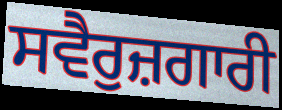
ਸਵੈਰੁਜ਼ਗਾਰੀ